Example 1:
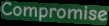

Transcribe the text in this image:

Compromise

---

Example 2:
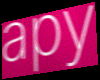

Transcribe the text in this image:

apy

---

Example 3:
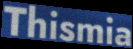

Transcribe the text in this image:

Thismia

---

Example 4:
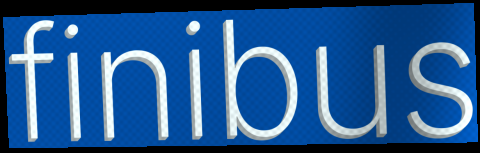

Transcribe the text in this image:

finibus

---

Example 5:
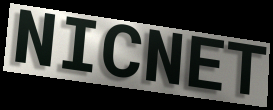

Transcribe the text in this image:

NICNET